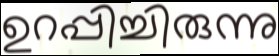
ഉറപ്പിച്ചിരുന്നു